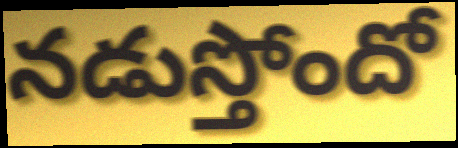
నడుస్తోందో